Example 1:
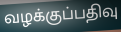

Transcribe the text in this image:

வழக்குப்பதிவு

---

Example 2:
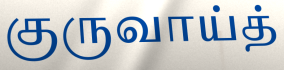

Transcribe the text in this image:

குருவாய்த்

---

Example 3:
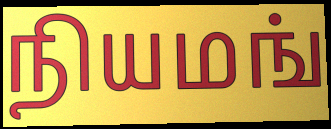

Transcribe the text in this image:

நியமங்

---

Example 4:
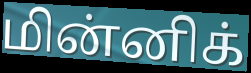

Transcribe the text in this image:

மின்னிக்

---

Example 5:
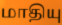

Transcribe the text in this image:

மாதியு